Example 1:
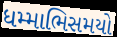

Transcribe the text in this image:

ધમ્માભિસમયો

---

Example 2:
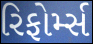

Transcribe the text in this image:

રિફોર્મ્સ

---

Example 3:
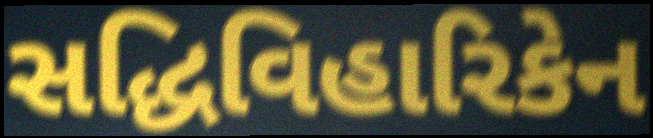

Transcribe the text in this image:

સદ્ધિવિહારિકેન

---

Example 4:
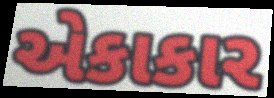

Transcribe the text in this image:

એકાકાર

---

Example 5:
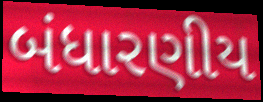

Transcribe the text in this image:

બંધારણીય